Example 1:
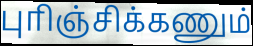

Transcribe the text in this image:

புரிஞ்சிக்கணும்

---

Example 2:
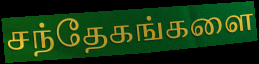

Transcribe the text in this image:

சந்தேகங்களை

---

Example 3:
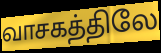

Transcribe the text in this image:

வாசகத்திலே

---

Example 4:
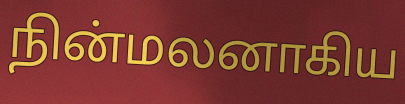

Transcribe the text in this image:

நின்மலனாகிய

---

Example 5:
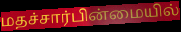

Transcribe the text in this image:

மதச்சார்பின்மையில்